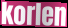
korlen